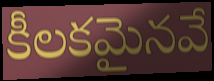
కీలకమైనవే